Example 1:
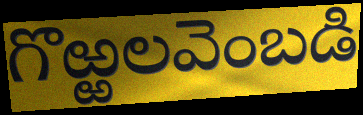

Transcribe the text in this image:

గొఱ్ఱలవెంబడి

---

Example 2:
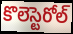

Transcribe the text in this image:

కొలెస్టెరోల్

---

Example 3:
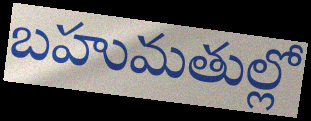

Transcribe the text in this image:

బహుమతుల్లో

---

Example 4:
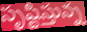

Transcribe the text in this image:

సృష్టిస్తున్న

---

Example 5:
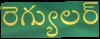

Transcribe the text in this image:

రెగ్యులర్